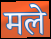
मले